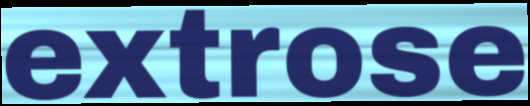
extrose